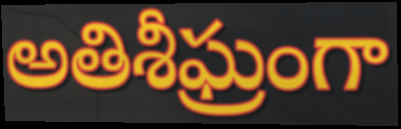
అతిశీఘ్రంగా